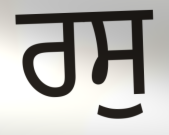
ਰਸੁ